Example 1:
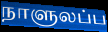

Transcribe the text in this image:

நாளுலப்ப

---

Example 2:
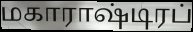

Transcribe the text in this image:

மகாராஷ்டிரப்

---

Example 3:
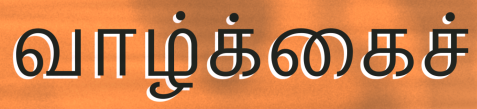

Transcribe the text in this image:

வாழ்க்கைச்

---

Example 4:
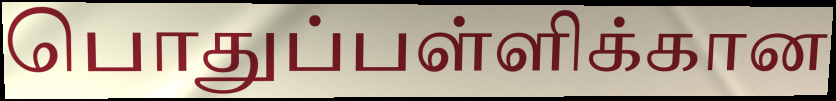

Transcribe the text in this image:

பொதுப்பள்ளிக்கான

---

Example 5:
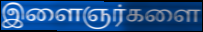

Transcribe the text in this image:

இளைஞர்களை